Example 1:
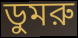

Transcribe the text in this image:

ডুমরু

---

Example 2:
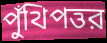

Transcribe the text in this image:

পুঁথিপত্তর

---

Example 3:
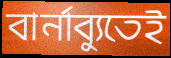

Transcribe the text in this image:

বার্নাব্যুতেই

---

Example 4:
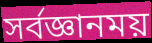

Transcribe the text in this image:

সর্বজ্ঞানময়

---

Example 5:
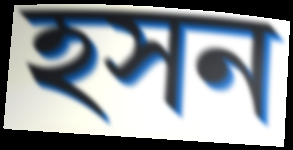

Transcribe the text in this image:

হসন